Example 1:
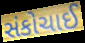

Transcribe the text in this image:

સંકોચાઈ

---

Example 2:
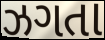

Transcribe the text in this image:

ઝગતા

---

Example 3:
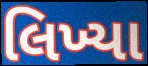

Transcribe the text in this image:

લિખ્યા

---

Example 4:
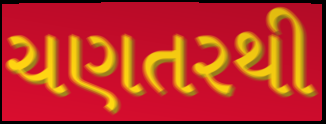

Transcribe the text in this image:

ચણતરથી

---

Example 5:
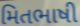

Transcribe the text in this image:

મિતભાષી